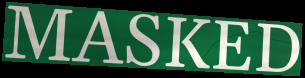
MASKED